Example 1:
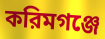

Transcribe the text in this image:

করিমগঞ্জে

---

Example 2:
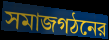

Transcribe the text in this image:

সমাজগঠনের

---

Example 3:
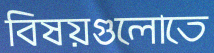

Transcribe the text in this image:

বিষয়গুলোতে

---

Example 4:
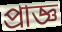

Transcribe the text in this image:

প্রাজ্ঞ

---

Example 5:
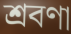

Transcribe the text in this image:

শ্রবণা